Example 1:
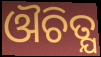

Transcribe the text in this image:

ଔଚିତ୍ଯ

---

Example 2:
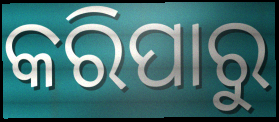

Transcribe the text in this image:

କରିପାରୁ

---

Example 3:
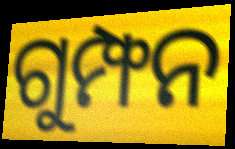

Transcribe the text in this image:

ଗୁମ୍ଫନ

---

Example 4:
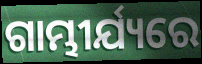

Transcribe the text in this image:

ଗାମ୍ଭୀର୍ଯ୍ୟରେ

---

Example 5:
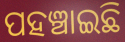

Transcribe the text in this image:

ପହଞ୍ଚାଇଛି